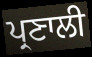
ਪ੍ਰਣਾਲੀ